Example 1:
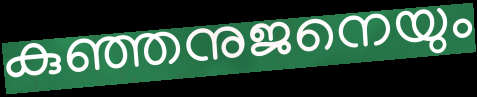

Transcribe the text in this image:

കുഞ്ഞനുജനെയും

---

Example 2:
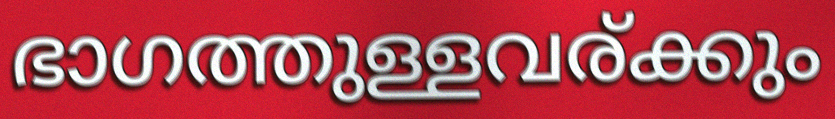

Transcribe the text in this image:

ഭാഗത്തുള്ളവര്ക്കും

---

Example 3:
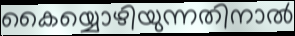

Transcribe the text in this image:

കൈയ്യൊഴിയുന്നതിനാൽ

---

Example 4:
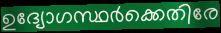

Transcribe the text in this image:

ഉദ്യോഗസ്ഥർക്കെതിരേ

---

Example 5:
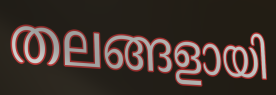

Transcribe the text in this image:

തലങ്ങളായി